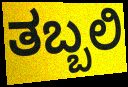
ತಬ್ಬಲಿ